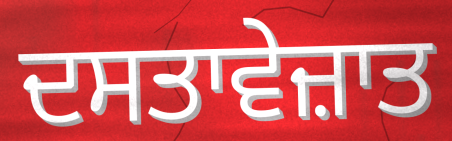
ਦਸਤਾਵੇਜ਼ਾਤ